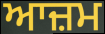
ਆਜ਼ਮ